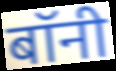
बॉनी